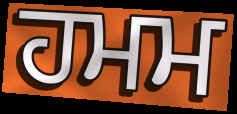
ਹਮਮ